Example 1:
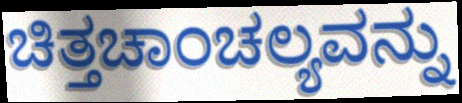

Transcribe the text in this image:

ಚಿತ್ತಚಾಂಚಲ್ಯವನ್ನು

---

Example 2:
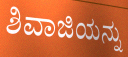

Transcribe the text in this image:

ಶಿವಾಜಿಯನ್ನು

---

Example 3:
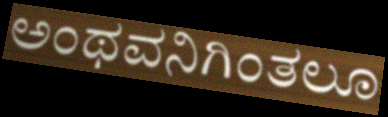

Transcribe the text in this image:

ಅಂಥವನಿಗಿಂತಲೂ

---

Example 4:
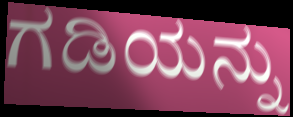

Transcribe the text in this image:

ಗಡಿಯನ್ನು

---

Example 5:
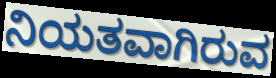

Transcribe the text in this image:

ನಿಯತವಾಗಿರುವ